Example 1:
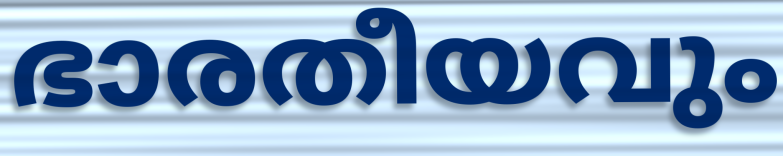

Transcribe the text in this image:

ഭാരതീയവും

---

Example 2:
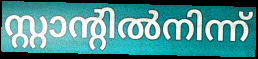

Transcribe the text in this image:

സ്റ്റാന്റിൽനിന്ന്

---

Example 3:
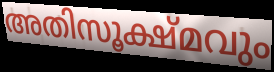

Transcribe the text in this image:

അതിസൂക്ഷ്മവും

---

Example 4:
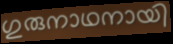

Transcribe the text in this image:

ഗുരുനാഥനായി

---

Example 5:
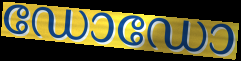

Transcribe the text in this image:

ഡോഡോ